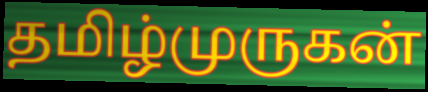
தமிழ்முருகன்